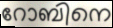
റോബിനെ